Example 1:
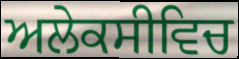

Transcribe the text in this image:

ਅਲੇਕਸੀਵਿਚ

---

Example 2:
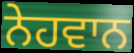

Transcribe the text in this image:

ਨੇਹਵਾਨ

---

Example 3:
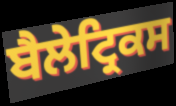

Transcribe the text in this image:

ਬੈਲੇਟ੍ਰਿਕਸ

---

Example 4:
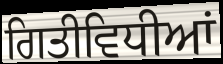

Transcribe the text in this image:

ਗਿਤੀਵਿਧੀਆਂ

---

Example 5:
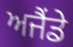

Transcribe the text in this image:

ਅਜੈਂਡੇ